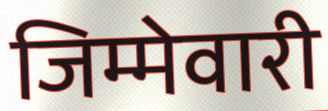
जिम्मेवारी